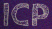
ICP